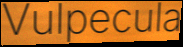
Vulpecula